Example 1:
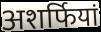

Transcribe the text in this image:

अशर्फियां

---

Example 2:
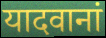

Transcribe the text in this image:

यादवानां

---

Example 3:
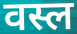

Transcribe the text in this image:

वस्ल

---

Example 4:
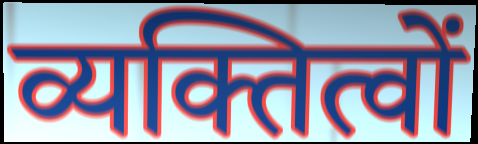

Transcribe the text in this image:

व्यक्तित्वों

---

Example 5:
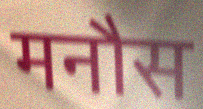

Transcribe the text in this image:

मनौस